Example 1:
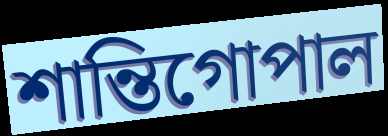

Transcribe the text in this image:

শান্তিগোপাল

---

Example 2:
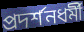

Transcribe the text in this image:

প্রদর্শনধর্মী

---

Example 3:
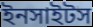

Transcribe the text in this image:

ইনসাইটস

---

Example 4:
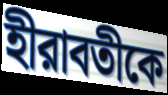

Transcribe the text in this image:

হীরাবতীকে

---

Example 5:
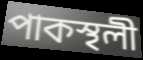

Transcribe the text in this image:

পাকস্থলী